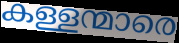
കള്ളന്മാരെ